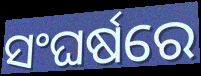
ସଂଘର୍ଷରେ